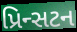
પ્રિન્સટન